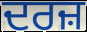
ਦਰਜ਼